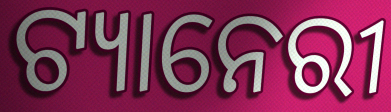
ଟ୍ୟାନେରୀ